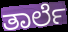
ತಾರ್ಲೆ